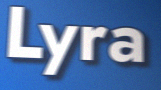
Lyra